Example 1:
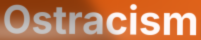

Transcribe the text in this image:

Ostracism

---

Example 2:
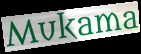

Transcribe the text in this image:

Mukama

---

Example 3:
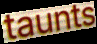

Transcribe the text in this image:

taunts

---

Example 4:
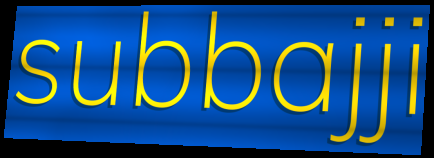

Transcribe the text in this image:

subbajji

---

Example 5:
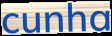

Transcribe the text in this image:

cunha